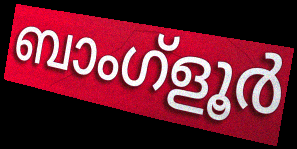
ബാംഗ്ളൂർ